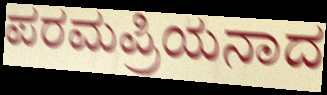
ಪರಮಪ್ರಿಯನಾದ